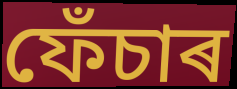
ফেঁচাৰ